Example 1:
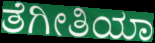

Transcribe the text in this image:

ತೆಗೀತಿಯಾ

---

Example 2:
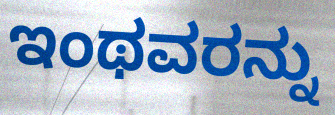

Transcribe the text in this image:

ಇಂಥವರನ್ನು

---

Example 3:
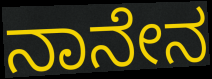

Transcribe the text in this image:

ನಾನೇನ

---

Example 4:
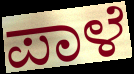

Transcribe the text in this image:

ಪಾಳೆ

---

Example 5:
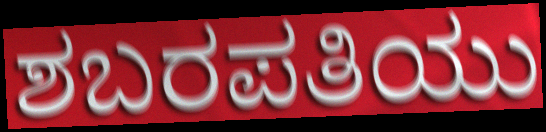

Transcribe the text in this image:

ಶಬರಪತಿಯು